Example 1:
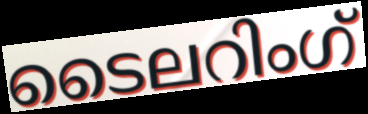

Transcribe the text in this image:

ടൈലറിംഗ്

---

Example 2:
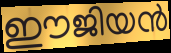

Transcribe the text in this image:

ഈജിയൻ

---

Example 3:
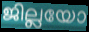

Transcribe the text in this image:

ജില്ലയോ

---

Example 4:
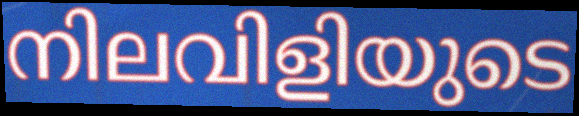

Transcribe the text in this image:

നിലവിളിയുടെ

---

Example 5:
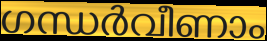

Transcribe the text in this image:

ഗന്ധർവീണാം